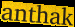
anthak